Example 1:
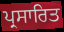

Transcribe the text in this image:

ਪ੍ਰਸਾਰਿਤ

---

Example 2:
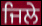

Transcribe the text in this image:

ਜਿਲੇ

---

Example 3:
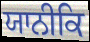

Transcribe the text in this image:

ਯਾਨੀਕਿ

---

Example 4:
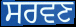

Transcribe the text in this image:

ਸਰਵਣ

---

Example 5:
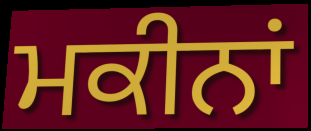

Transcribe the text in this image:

ਮਕੀਨਾਂ